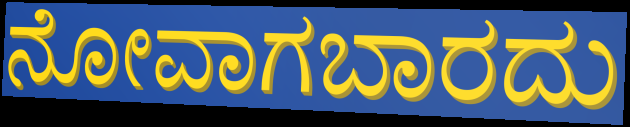
ನೋವಾಗಬಾರದು